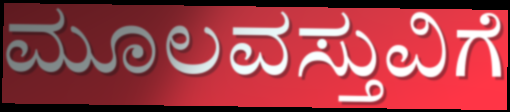
ಮೂಲವಸ್ತುವಿಗೆ